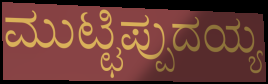
ಮುಟ್ಟಿಪ್ಪುದಯ್ಯ